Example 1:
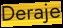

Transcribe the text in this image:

Deraje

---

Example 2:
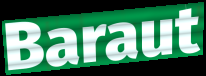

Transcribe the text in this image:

Baraut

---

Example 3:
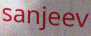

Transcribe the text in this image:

sanjeev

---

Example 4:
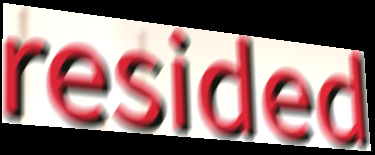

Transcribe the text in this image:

resided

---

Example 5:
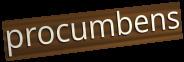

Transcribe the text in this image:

procumbens